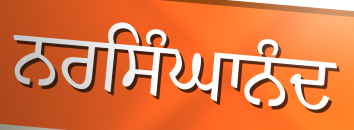
ਨਰਸਿੰਘਾਨੰਦ